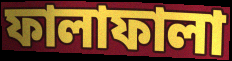
ফালাফালা